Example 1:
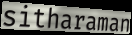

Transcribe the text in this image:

sitharaman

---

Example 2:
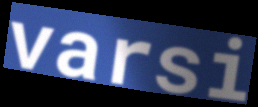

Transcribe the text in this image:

varsi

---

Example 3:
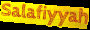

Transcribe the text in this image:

Salafiyyah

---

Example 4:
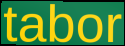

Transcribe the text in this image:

tabor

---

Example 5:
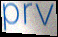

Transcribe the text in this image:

prv